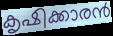
കൃഷിക്കാരൻ